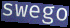
swego